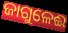
ଜାଗୁଳେଈ